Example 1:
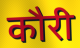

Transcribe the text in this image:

कौरी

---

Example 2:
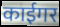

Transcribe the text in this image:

काईगर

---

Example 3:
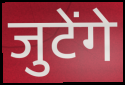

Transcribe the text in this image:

जुटेंगे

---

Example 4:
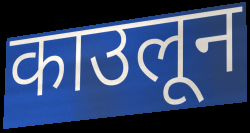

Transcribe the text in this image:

काउलून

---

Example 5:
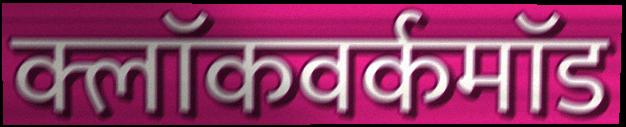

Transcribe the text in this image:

क्लॉकवर्कमॉड